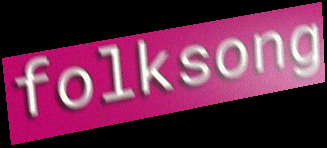
folksong